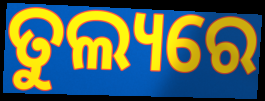
ତୁଲ୍ୟରେ